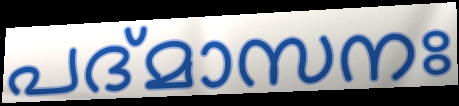
പദ്മാസനഃ